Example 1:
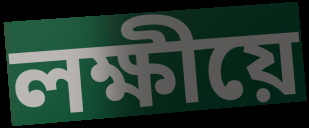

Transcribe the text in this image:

লক্ষীয়ে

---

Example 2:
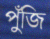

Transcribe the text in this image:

পুঁজি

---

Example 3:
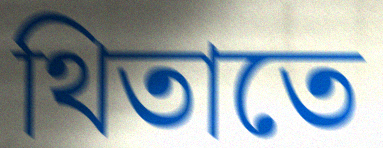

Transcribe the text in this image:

থিতাতে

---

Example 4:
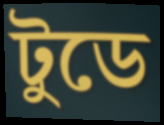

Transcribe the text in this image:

টুডে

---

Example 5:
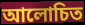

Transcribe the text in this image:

আলোচিত